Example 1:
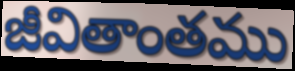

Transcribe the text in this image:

జీవితాంతము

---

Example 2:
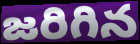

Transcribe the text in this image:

జరిగిన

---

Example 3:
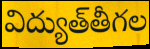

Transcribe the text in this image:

విద్యుత్‌తీగల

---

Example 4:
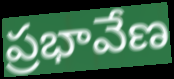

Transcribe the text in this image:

ప్రభావేణ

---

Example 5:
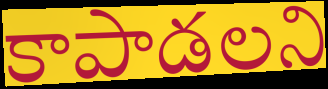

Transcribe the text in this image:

కాపాడలని